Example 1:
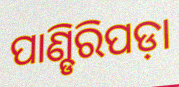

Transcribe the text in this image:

ପାଣ୍ଡିରିପଡ଼ା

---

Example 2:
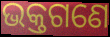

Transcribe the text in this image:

ଭକ୍ତଗଣେ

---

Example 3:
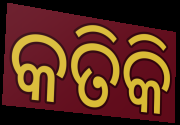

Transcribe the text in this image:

କତିକି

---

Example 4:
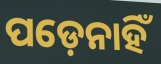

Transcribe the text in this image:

ପଡ଼େନାହିଁ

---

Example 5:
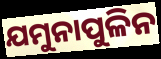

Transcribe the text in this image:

ଯମୁନାପୁଳିନ